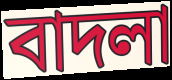
বাদলা